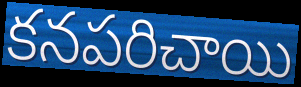
కనపరిచాయి